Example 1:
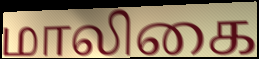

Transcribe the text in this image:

மாலிகை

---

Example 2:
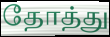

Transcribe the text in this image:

தோத்து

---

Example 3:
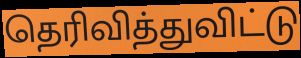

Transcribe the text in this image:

தெரிவித்துவிட்டு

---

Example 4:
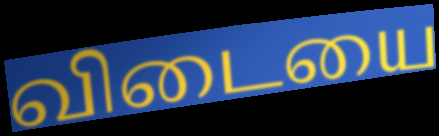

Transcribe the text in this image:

விடையை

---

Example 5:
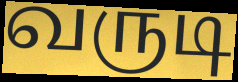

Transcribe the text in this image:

வருடி